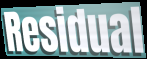
Residual